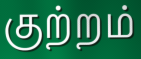
குற்றம்